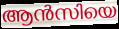
ആൻസിയെ